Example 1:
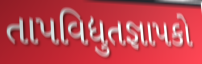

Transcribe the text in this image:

તાપવિદ્યુતજ્ઞાપકો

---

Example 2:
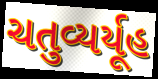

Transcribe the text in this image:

ચતુવ્યર્યૂહ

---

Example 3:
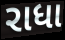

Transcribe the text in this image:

રાધા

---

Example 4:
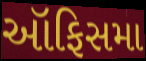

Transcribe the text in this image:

ઑફિસમા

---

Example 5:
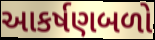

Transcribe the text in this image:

આકર્ષણબળો